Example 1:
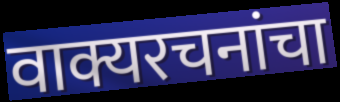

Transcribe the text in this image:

वाक्यरचनांचा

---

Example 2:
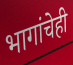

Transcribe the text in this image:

भागांचेही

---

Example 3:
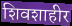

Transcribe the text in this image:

शिवशाहीर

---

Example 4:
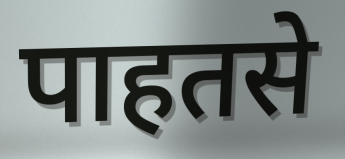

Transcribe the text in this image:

पाहतसे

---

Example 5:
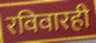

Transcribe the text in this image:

रविवारही